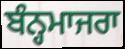
ਬੰਨ੍ਹਮਾਜਰਾ